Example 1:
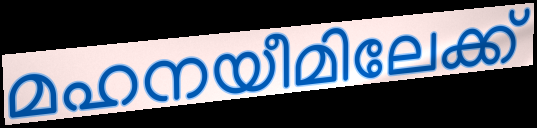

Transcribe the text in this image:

മഹനയീമിലേക്ക്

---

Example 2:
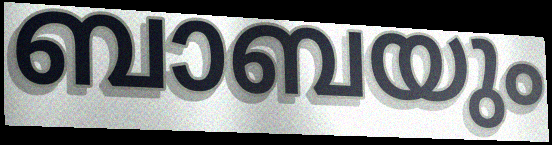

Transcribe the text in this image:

ബാബയും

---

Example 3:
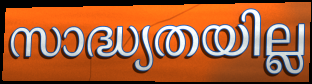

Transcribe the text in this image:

സാദ്ധ്യതയില്ല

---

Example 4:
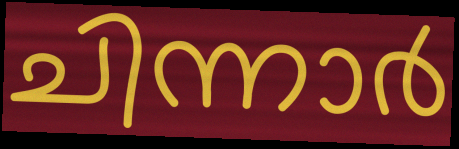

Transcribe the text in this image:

ചിന്നാർ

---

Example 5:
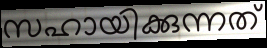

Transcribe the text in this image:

സഹായിക്കുന്നത്